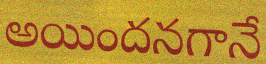
అయిందనగానే